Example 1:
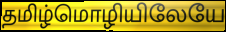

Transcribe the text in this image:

தமிழ்மொழியிலேயே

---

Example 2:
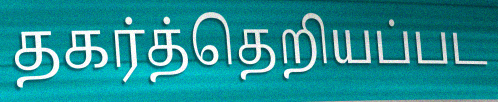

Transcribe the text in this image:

தகர்த்தெறியப்பட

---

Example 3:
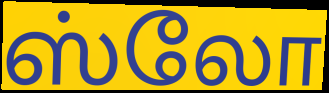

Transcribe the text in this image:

ஸ்லோ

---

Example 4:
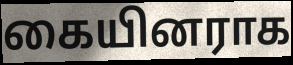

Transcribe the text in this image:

கையினராக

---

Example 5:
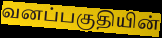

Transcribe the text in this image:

வனப்பகுதியின்